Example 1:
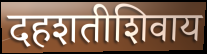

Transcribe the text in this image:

दहशतीशिवाय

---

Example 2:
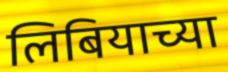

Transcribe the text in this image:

लिबियाच्या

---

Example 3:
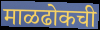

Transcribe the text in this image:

माळढोकची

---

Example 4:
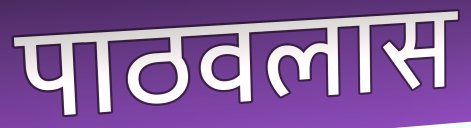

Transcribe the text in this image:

पाठवलास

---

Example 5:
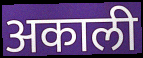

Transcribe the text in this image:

अकाली